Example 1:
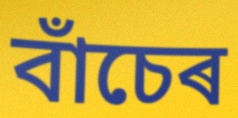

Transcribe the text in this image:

বাঁচেৰ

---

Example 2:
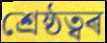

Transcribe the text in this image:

শ্ৰেষ্ঠত্বৰ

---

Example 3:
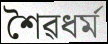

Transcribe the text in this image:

শৈৱধৰ্ম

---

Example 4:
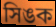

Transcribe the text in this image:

সিঙক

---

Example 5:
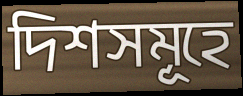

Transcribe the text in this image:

দিশসমূহে